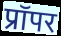
प्रॉपर